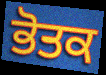
ਭੋਤਕ